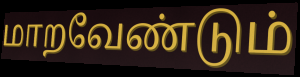
மாறவேண்டும்